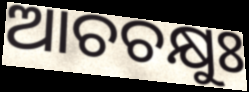
ଆଚଚକ୍ଷୁଃ